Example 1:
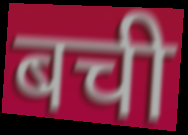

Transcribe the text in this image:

बची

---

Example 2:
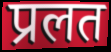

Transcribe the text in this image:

प्रलत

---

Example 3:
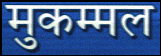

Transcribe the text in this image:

मुकम्मल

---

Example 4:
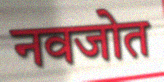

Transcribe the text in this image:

नवजोत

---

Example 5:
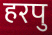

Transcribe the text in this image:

हरपु